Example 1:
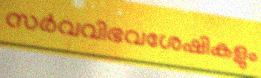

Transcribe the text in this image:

സർവവിഭവശേഷികളും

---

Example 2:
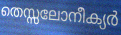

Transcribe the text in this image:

തെസ്സലോനീക്യർ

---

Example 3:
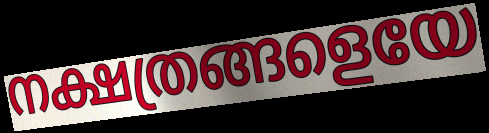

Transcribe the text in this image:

നക്ഷത്രങ്ങളെയേ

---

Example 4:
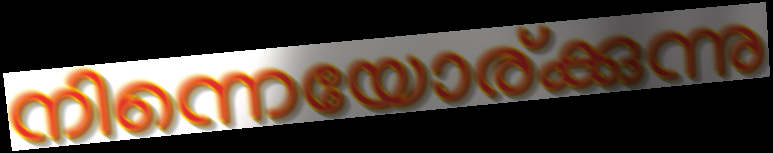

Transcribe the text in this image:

നിന്നെയോര്ക്കുന്നു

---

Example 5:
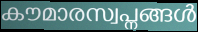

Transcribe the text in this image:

കൗമാരസ്വപ്നങ്ങൾ